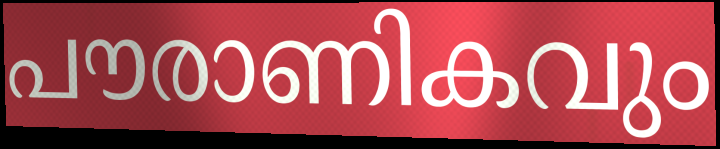
പൗരാണികവും